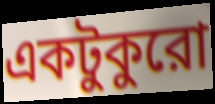
একটুকুরো